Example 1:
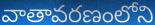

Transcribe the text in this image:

వాతావరణంలోని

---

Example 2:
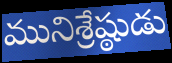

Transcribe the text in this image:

మునిశ్రేష్ఠుడు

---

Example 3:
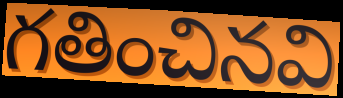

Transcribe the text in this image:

గతించినవి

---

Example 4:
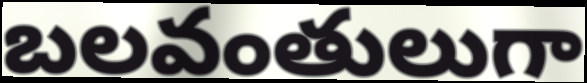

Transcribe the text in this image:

బలవంతులుగా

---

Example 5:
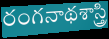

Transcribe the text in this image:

రంగనాథశాస్త్రి